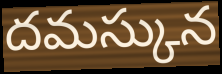
దమస్కున